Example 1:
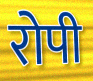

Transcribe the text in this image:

रोपी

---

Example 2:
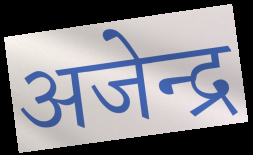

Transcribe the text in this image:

अजेन्द्र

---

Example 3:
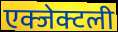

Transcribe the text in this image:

एक्जेक्टली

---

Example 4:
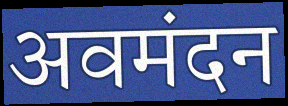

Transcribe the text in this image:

अवमंदन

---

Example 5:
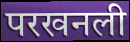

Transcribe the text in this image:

परखनली